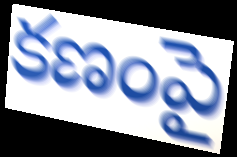
కణంపై